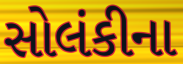
સોલંકીના